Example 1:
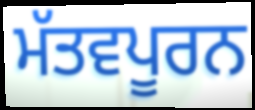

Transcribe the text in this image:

ਮੱਤਵਪੂਰਨ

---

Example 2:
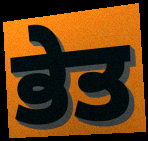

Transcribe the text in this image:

ਭੇਤ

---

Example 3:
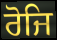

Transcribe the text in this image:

ਰੋਜਿ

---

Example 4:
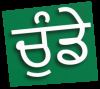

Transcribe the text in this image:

ਚੁੰਡੇ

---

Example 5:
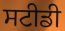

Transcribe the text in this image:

ਸਟੀਡੀ